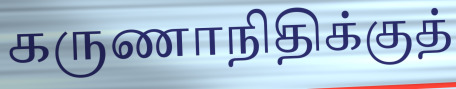
கருணாநிதிக்குத்